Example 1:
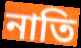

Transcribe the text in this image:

নাতি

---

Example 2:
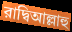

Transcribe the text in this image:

রাদ্বিআল্লাহু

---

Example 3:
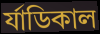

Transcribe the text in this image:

র্যাডিকাল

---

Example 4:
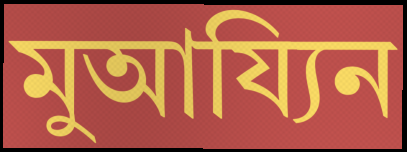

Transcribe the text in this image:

মুআয্যিন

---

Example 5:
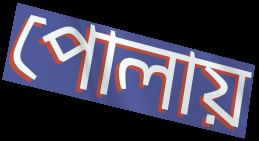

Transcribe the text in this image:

পোলায়